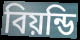
বিয়ন্ডি